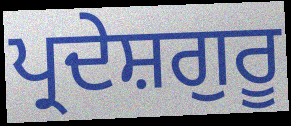
ਪ੍ਰਦੇਸ਼ਗੁਰੂ